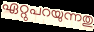
ഏറ്റുപറയുന്നതു